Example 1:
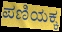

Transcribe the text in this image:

ಪಣಿಯಕ್ಕ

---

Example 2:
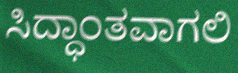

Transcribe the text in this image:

ಸಿದ್ಧಾಂತವಾಗಲಿ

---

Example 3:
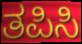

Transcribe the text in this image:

ತಪಿಸಿ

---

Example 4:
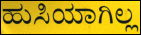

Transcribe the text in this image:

ಹುಸಿಯಾಗಿಲ್ಲ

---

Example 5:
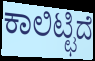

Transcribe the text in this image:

ಕಾಲಿಟ್ಟಿದೆ